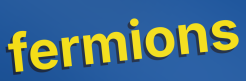
fermions